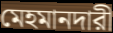
মেহমানদারী